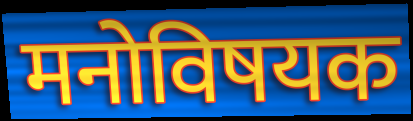
मनोविषयक